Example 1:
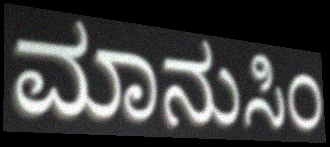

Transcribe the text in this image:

ಮಾನುಸಿಂ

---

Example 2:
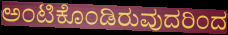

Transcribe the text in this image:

ಅಂಟಿಕೊಂಡಿರುವುದರಿಂದ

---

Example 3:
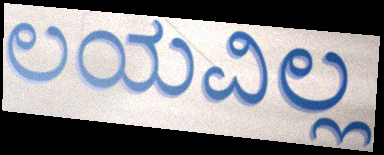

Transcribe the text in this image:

ಲಯವಿಲ್ಲ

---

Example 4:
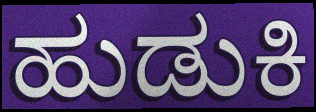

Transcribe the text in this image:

ಹುಡುಕಿ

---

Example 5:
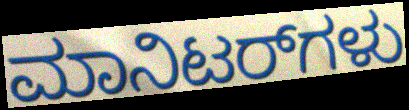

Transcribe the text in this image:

ಮಾನಿಟರ್‌ಗಳು